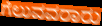
ಗೆಲುವವರಾರು